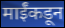
माईंकडून